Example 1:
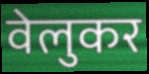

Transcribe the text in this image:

वेलुकर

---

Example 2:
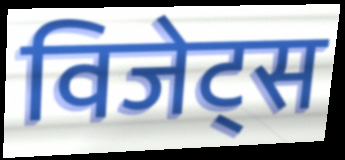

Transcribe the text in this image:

विजेट्स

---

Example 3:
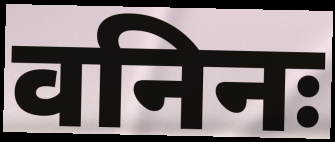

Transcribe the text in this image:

वनिनः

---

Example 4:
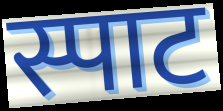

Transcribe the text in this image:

स्पाट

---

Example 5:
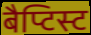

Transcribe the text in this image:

बैप्टिस्ट